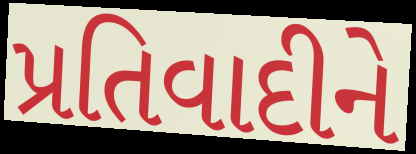
પ્રતિવાદીને